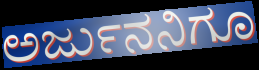
ಅರ್ಜುನನಿಗೂ